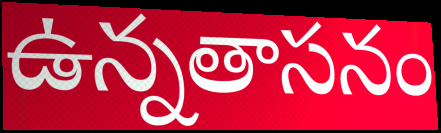
ఉన్నతాసనం